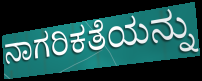
ನಾಗರಿಕತೆಯನ್ನು